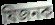
যিজনক